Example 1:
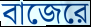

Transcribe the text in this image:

বাজেরে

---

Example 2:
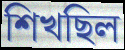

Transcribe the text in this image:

শিখছিল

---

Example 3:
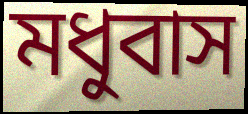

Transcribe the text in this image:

মধুবাস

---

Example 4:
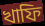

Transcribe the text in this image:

খাফি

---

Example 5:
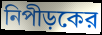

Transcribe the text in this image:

নিপীড়কের